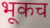
भूकच